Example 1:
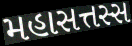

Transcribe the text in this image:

મહાસત્તસ્સ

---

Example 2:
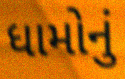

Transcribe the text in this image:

ધામોનું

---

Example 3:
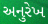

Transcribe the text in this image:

અનુરેખ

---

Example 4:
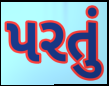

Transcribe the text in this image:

પરતું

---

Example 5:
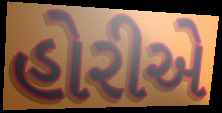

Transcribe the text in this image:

હોરીએ